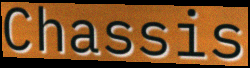
Chassis